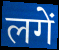
लगें